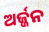
ଅର୍ଜ୍ଜନ